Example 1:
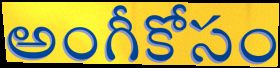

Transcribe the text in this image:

అంగీకోసం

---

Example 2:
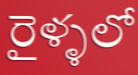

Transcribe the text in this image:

రైళ్ళలో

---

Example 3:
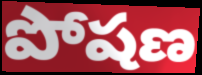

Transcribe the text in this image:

పోషణ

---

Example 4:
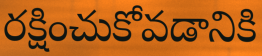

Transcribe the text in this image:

రక్షించుకోవడానికి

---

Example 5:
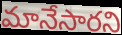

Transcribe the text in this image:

మానేసారని